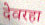
देवरहा